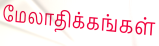
மேலாதிக்கங்கள்